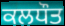
ਕਲਧੌਤ